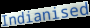
Indianised